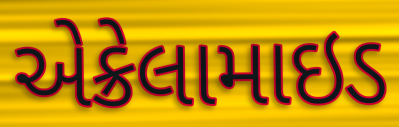
એક્રેલામાઇડ